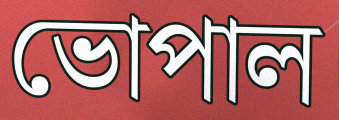
ভোপাল